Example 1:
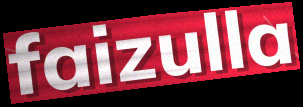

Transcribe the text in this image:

faizulla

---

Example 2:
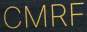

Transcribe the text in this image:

CMRF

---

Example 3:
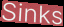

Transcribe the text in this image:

Sinks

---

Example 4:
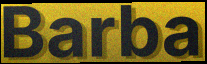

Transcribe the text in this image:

Barba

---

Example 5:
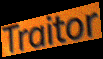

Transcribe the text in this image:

Traitor